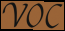
VOC